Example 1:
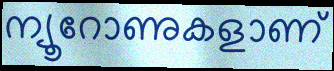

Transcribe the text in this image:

ന്യൂറോണുകളാണ്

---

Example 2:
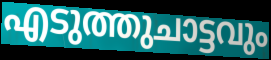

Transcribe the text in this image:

എടുത്തുചാട്ടവും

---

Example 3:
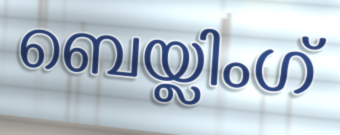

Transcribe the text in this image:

ബെയ്ലിംഗ്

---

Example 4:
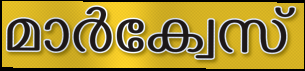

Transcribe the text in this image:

മാർക്വേസ്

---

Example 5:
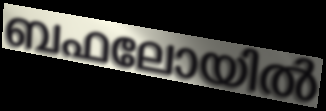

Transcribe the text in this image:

ബഫലോയിൽ